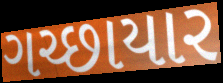
ગચ્છાયાર